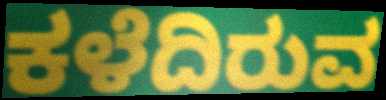
ಕಳೆದಿರುವ